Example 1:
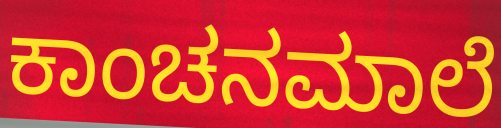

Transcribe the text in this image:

ಕಾಂಚನಮಾಲೆ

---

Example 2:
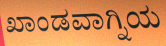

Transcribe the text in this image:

ಖಾಂಡವಾಗ್ನಿಯ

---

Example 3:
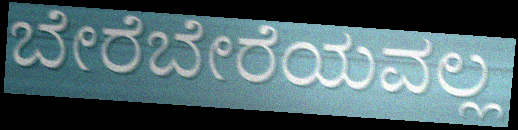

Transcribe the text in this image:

ಬೇರೆಬೇರೆಯವಲ್ಲ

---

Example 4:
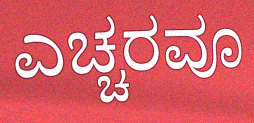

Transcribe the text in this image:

ಎಚ್ಚರವೂ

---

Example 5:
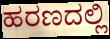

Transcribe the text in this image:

ಹರಣದಲ್ಲಿ